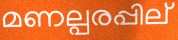
മണല്പരപ്പില്